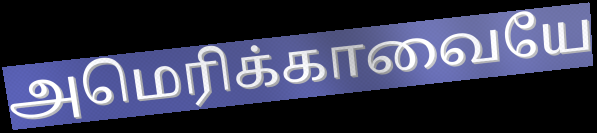
அமெரிக்காவையே